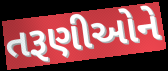
તરૂણીઓને